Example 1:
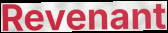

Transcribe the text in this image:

Revenant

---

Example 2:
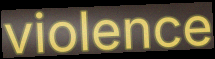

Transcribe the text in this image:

violence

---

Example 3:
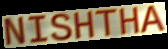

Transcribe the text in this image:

NISHTHA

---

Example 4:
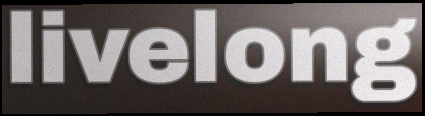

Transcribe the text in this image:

livelong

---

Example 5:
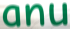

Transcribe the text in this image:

anu